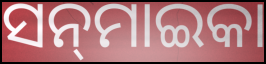
ସନ୍‌ମାଇକା